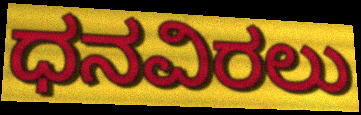
ಧನವಿರಲು